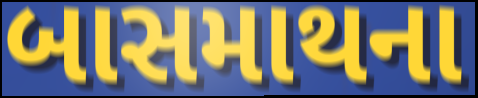
બાસમાથના